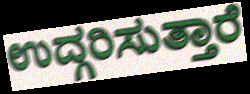
ಉದ್ಗರಿಸುತ್ತಾರೆ